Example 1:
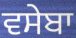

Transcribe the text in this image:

ਵਸੇਬਾ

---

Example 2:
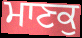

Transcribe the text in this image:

ਮਾਣਕੁ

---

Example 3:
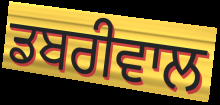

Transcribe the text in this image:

ਡਬਰੀਵਾਲ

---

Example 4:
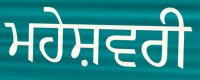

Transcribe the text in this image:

ਮਹੇਸ਼ਵਰੀ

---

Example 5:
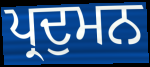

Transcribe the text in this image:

ਪ੍ਰਦੁਮਨ